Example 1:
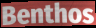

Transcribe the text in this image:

Benthos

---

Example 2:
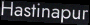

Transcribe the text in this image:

Hastinapur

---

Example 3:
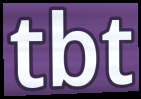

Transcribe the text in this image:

tbt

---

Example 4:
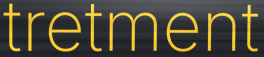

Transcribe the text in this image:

tretment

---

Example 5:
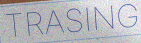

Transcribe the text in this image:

TRASING